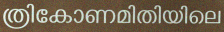
ത്രികോണമിതിയിലെ